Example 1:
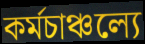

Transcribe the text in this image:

কর্মচাঞ্চল্যে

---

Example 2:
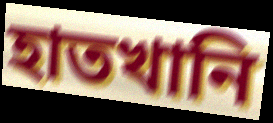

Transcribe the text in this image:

হাতখানি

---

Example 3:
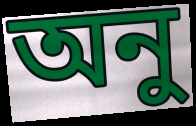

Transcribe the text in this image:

অনু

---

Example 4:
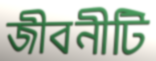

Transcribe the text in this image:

জীবনীটি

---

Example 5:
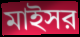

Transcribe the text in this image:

মাইসর